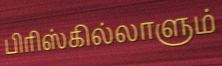
பிரிஸ்கில்லாளும்